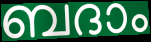
ബദാം